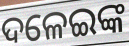
ଦଳେଇଙ୍କ